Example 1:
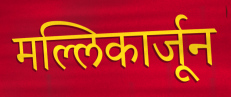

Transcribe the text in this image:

मल्लिकार्जून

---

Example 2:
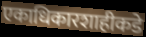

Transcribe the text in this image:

एकाधिकारशाहीकडे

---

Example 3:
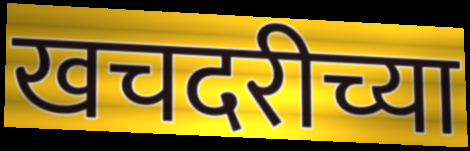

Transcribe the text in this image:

खचदरीच्या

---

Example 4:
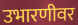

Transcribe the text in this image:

उभारणीवर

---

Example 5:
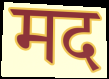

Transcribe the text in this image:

मद